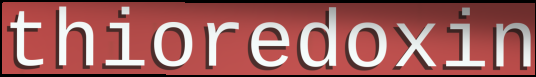
thioredoxin